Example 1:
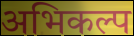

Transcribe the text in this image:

अभिकल्प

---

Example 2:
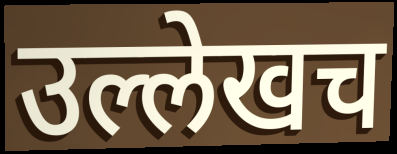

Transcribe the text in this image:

उल्लेखच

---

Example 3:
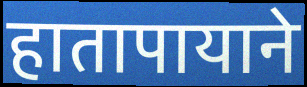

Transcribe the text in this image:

हातापायाने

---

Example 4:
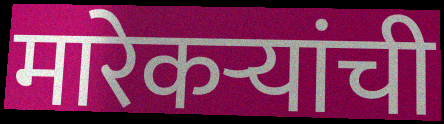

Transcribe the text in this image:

मारेकऱ्यांची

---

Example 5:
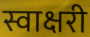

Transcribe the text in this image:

स्वाक्षरी